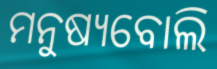
ମନୁଷ୍ୟବୋଲି